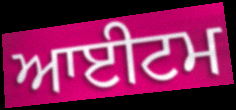
ਆਈਟਮ